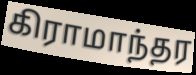
கிராமாந்தர